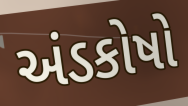
અંડકોષો